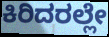
ಕಿರಿದರಲ್ಲೇ